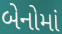
બેનોમાં